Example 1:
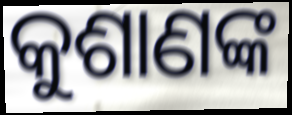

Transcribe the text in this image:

କୁଶାଣଙ୍କ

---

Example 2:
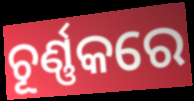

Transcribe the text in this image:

ଚୂର୍ଣ୍ଣକରେ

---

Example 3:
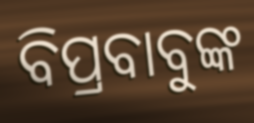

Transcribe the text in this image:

ବିପ୍ରବାବୁଙ୍କ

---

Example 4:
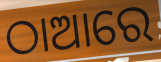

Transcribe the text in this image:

ଠାଆରେ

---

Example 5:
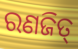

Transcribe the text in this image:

ରଣଜିତ୍